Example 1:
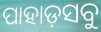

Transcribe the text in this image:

ପାହାଡ଼ସବୁ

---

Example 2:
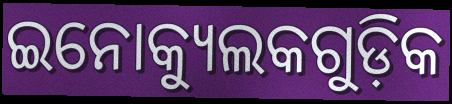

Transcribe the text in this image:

ଇନୋକ୍ଯୁଲକଗୁଡ଼ିକ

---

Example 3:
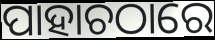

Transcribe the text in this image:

ପାହାଚଠାରେ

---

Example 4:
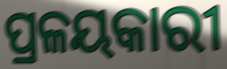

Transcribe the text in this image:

ପ୍ରଳୟକାରୀ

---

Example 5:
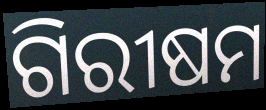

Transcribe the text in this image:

ଗିରୀଷମ